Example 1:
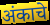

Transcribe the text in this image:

अंकाचे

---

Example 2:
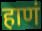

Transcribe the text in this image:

हाणं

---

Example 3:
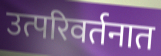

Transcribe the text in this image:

उत्परिवर्तनात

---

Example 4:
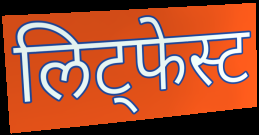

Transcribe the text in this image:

लिट्फेस्ट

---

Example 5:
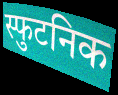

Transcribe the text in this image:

स्फुटनिक